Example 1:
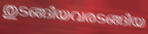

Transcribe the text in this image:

തുടങ്ങിയവരടങ്ങിയ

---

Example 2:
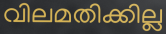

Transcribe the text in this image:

വിലമതിക്കില്ല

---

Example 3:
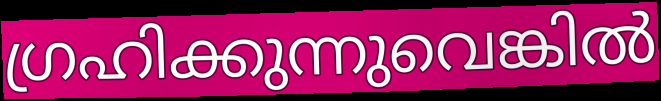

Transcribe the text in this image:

ഗ്രഹിക്കുന്നുവെങ്കിൽ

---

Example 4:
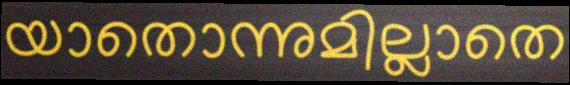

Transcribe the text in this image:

യാതൊന്നുമില്ലാതെ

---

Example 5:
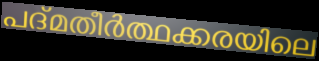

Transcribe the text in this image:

പദ്മതീർത്ഥക്കരയിലെ